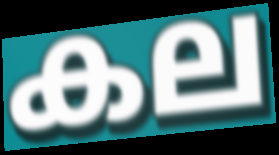
കല